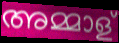
അമ്മാള്